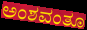
ಅಂಶವಂತೂ